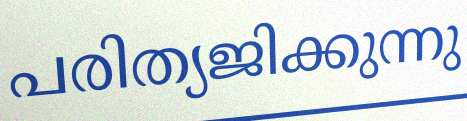
പരിത്യജിക്കുന്നു